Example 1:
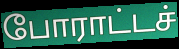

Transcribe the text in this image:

போராட்டச்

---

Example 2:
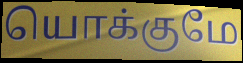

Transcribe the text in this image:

யொக்குமே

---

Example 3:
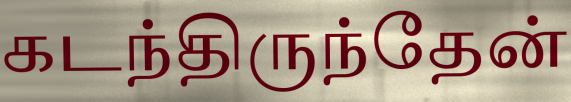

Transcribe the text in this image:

கடந்திருந்தேன்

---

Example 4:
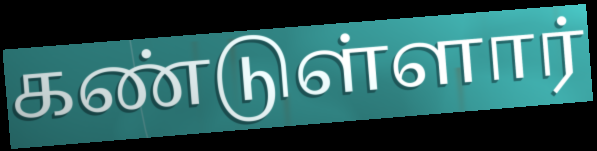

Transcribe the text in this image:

கண்டுள்ளார்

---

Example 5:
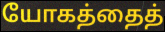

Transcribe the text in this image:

யோகத்தைத்